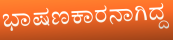
ಭಾಷಣಕಾರನಾಗಿದ್ದ